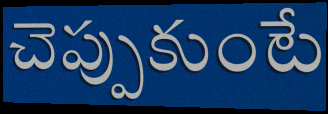
చెప్పుకుంటే